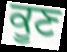
ਕੂਣ